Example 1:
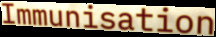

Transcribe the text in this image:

Immunisation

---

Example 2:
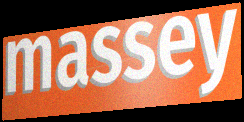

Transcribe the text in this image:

massey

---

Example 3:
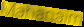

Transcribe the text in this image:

Mahanaim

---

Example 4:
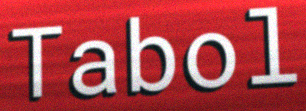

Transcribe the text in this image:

Tabol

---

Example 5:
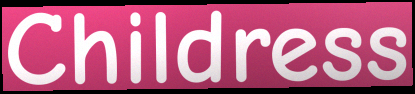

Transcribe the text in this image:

Childress